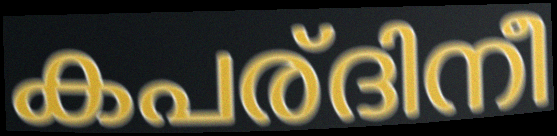
കപര്ദിനീ